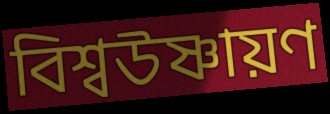
বিশ্বউষ্ণায়ণ